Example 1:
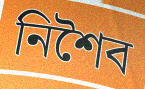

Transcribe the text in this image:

নিশৈব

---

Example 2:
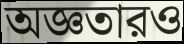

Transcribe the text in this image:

অজ্ঞতারও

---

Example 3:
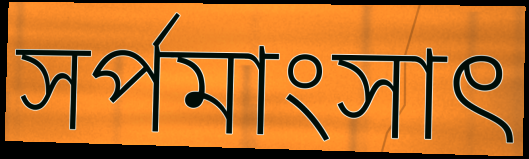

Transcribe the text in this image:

সর্পমাংসাৎ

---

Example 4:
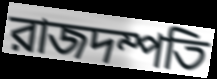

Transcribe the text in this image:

রাজদম্পতি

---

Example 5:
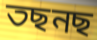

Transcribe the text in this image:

তছনছ